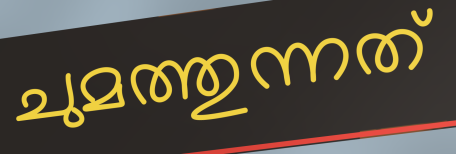
ചുമത്തുന്നത്